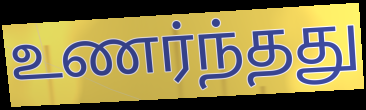
உணர்ந்தது